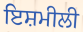
ਇਸ਼ਮੀਲੀ